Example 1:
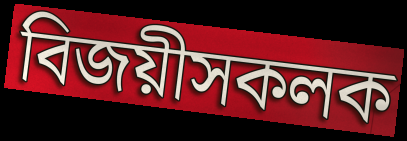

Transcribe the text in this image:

বিজয়ীসকলক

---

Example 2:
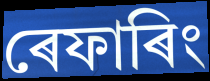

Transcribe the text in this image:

ৰেফাৰিং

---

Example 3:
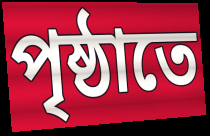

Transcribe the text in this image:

পৃষ্ঠাতে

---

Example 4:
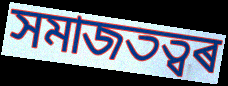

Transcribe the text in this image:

সমাজতত্বৰ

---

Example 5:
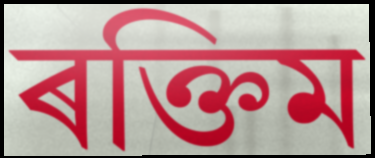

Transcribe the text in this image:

ৰক্তিম